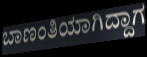
ಬಾಣಂತಿಯಾಗಿದ್ದಾಗ